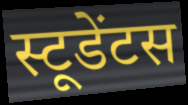
स्टूडेंटस